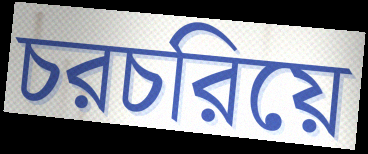
চরচরিয়ে